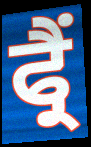
ਫ੍ਰੈਂ